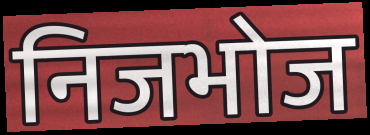
निजभोज